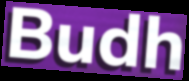
Budh